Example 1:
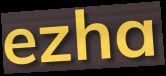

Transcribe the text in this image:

ezha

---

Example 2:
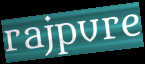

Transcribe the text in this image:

rajpure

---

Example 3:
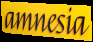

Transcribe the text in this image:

amnesia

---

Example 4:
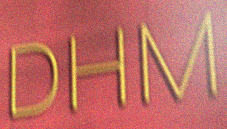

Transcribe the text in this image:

DHM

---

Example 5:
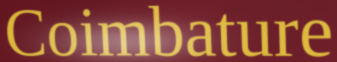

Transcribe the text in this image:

Coimbature